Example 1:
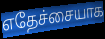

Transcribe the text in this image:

எதேச்சையாக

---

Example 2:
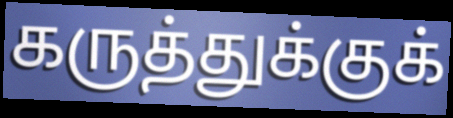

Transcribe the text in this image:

கருத்துக்குக்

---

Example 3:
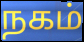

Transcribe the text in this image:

நகம்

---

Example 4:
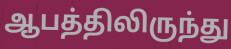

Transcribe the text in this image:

ஆபத்திலிருந்து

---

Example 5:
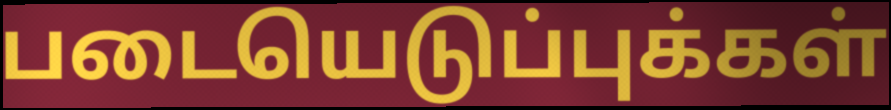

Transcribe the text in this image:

படையெடுப்புக்கள்